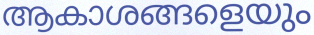
ആകാശങ്ങളെയും